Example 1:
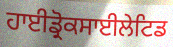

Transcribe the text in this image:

ਹਾਈਡ੍ਰੋਕਸਾਈਲੇਟਿਡ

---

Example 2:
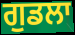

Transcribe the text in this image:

ਗੁਡਲਾ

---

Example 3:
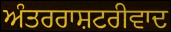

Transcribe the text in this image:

ਅੰਤਰਰਾਸ਼ਟਰੀਵਾਦ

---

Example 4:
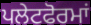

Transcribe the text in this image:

ਪਲੇਟਫੋਰਮਾਂ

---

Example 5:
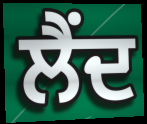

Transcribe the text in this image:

ਲੈਂਦ